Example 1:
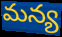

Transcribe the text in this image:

మన్య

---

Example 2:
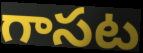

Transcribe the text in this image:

గాసట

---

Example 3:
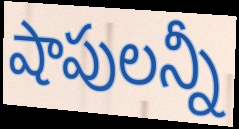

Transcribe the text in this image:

షాపులన్నీ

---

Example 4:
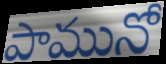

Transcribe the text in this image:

పామునో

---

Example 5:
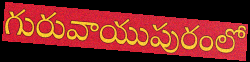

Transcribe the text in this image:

గురువాయుపురంలో